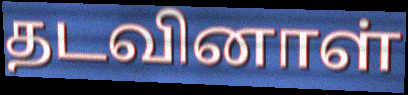
தடவினாள்